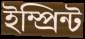
ইম্প্ৰিন্ট